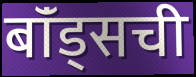
बॉंड्सची